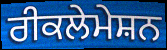
ਰੀਕਲੇਮੇਸ਼ਨ